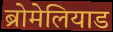
ब्रोमेलियाड